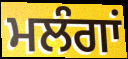
ਮਲੰਗਾਂ